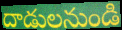
దాడులనుండి